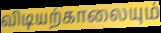
விடியற்காலையும்